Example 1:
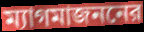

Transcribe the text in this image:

ম্যাগমাজননের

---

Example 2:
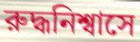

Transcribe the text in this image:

রুদ্ধনিশ্বাসে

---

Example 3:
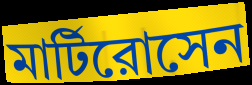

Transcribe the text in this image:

মার্টিরোসেন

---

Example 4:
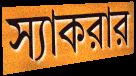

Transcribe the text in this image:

স্যাকরার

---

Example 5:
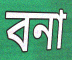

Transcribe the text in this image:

বনা